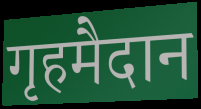
गृहमैदान